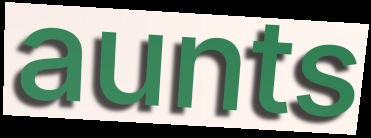
aunts